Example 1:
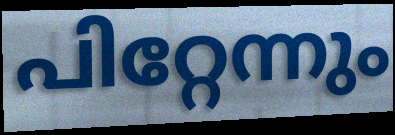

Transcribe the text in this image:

പിറ്റേന്നും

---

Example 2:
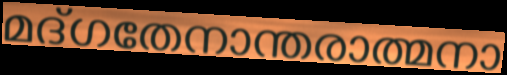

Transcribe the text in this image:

മദ്ഗതേനാന്തരാത്മനാ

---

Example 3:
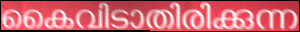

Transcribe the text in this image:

കൈവിടാതിരിക്കുന്ന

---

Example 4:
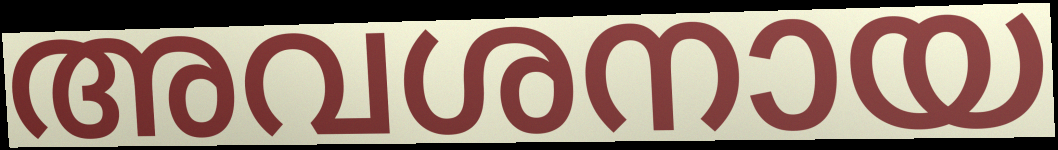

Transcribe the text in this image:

അവശനായ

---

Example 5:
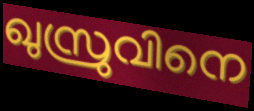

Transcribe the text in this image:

ഖുസ്രുവിനെ